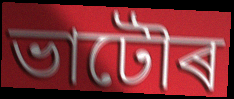
ভাটৌৰ